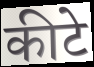
कीटे